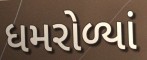
ધમરોળ્યાં